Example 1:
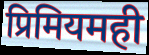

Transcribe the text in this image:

प्रिमियमही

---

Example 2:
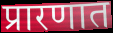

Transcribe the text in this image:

प्रारणात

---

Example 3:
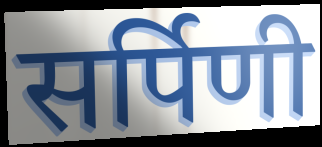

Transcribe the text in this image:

सर्पिणी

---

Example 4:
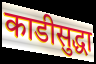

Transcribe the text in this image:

काडीसुद्धा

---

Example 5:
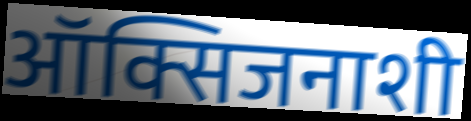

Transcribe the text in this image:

ऑक्सिजनाशी